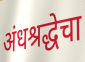
अंधश्रद्धेचा